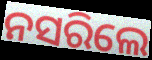
ନସରିଲେ